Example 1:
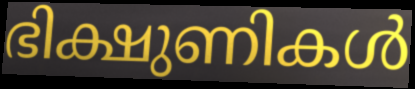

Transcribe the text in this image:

ഭിക്ഷുണികൾ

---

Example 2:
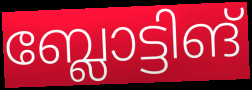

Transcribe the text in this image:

ബ്ലോട്ടിങ്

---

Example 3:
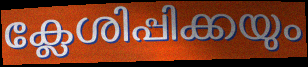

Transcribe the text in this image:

ക്ലേശിപ്പിക്കയും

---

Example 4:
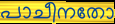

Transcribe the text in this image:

പാചീനതോ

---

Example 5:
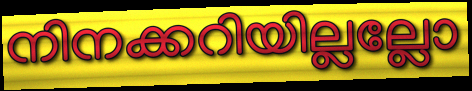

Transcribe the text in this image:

നിനക്കറിയില്ലല്ലോ